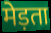
मेड़ता